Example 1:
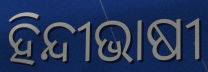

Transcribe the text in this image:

ହିନ୍ଦୀଭାଷୀ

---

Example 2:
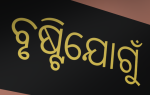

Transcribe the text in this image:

ବୃଷ୍ଟିଯୋଗୁଁ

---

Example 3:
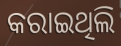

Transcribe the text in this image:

କରାଇଥିଲି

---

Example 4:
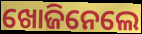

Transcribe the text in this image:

ଖୋଜିନେଲେ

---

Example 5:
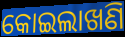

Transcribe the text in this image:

କୋଇଲାଖଣି